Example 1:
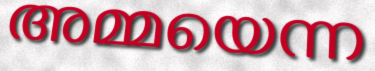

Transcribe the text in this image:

അമ്മയെന്ന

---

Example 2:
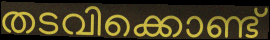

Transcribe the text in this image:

തടവിക്കൊണ്ട്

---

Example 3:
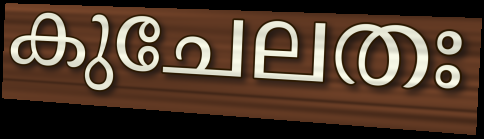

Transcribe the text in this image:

കുചേലതഃ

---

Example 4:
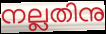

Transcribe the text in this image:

നല്ലതിനു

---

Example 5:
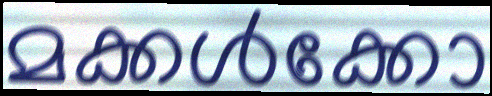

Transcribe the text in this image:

മക്കൾക്കോ